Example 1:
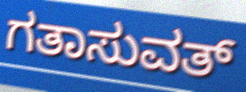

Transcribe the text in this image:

ಗತಾಸುವತ್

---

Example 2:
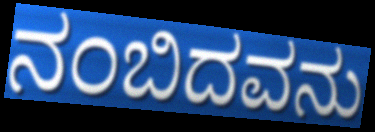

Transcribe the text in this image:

ನಂಬಿದವನು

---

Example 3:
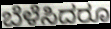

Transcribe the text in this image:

ಬೆಳೆಸಿದರೂ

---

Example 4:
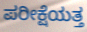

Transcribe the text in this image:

ಪರೀಕ್ಷೆಯತ್ತ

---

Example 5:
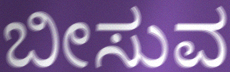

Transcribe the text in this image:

ಬೀಸುವ